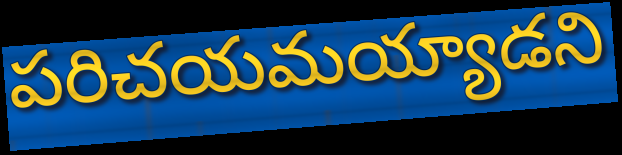
పరిచయమయ్యాడని